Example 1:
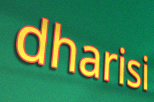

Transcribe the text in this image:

dharisi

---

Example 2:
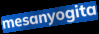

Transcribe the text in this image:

mesanyogita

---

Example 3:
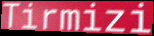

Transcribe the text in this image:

Tirmizi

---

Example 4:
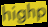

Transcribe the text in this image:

highp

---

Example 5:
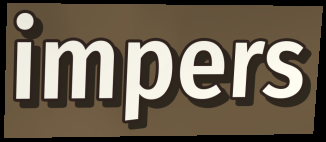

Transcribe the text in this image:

impers